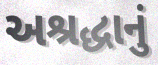
અશ્રદ્ધાનું